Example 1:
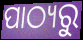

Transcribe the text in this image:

ପାଠ୍ୟରୁ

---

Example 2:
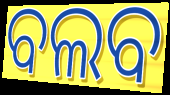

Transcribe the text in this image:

ବଲବ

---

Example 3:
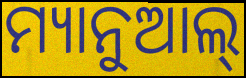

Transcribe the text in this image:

ମ୍ୟାନୁଆଲ୍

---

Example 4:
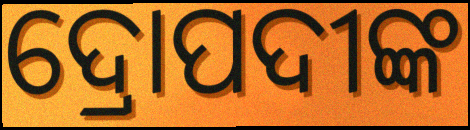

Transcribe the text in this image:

ଦ୍ରୋପଦୀଙ୍କ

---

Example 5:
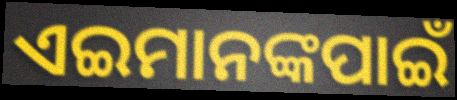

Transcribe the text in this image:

ଏଇମାନଙ୍କପାଇଁ